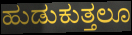
ಹುಡುಕುತ್ತಲೂ